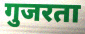
गुजरता